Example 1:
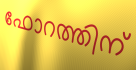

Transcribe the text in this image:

ഫോറത്തിന്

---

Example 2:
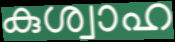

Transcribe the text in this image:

കുശ്വാഹ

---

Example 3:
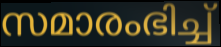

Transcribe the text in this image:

സമാരംഭിച്ച്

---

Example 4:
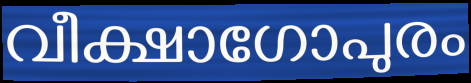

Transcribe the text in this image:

വീക്ഷാഗോപുരം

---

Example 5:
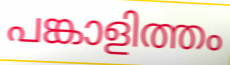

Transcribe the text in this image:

പങ്കാളിത്തം